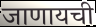
जाणायची